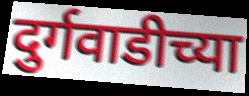
दुर्गवाडीच्या